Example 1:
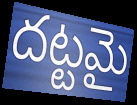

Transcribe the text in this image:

దట్టమై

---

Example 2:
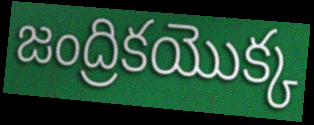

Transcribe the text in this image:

జంద్రికయొక్క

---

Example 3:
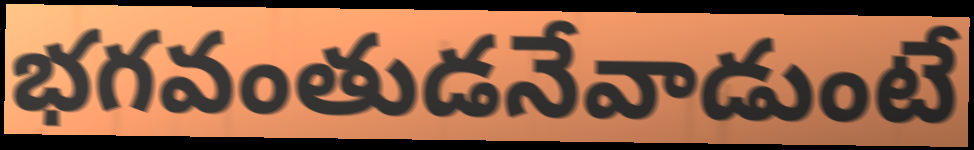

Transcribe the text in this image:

భగవంతుడనేవాడుంటే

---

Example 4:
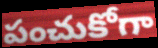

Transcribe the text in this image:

పంచుకోగా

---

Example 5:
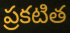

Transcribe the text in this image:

ప్రకటిత